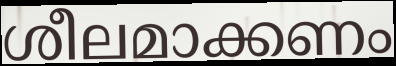
ശീലമാക്കണം